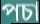
পচা